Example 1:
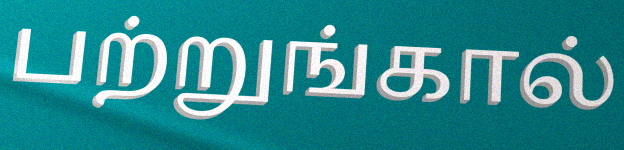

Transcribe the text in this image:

பற்றுங்கால்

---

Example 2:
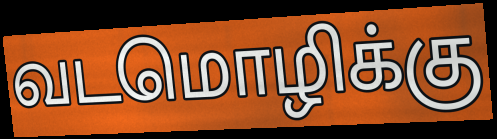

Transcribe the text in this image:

வடமொழிக்கு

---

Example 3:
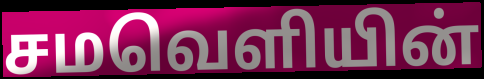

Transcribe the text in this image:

சமவெளியின்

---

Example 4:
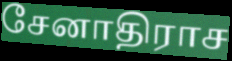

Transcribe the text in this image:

சேனாதிராச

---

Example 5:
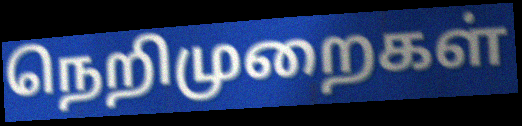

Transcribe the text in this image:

நெறிமுறைகள்